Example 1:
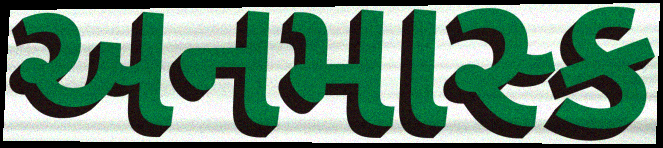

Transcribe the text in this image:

અનમાસ્ક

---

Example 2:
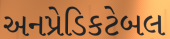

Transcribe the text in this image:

અનપ્રેડિકટેબલ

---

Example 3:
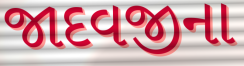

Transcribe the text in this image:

જાદવજીના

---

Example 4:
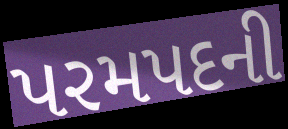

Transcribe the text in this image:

પરમપદની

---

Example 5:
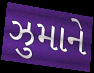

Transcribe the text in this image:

ઝુમાને